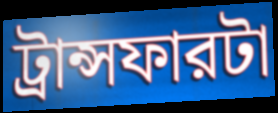
ট্রান্সফারটা